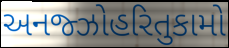
અનજ્ઝોહરિતુકામો